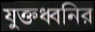
যুক্তধ্বনির